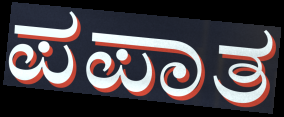
ಪಪಾತ